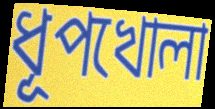
ধূপখোলা